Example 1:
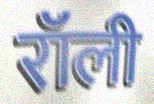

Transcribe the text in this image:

रॉली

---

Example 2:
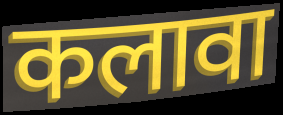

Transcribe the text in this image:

कलावा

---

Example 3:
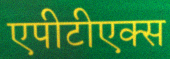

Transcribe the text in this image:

एपीटीएक्स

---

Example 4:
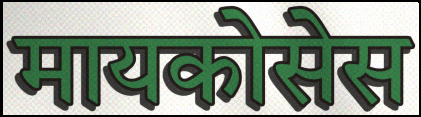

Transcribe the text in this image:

मायकोसेस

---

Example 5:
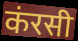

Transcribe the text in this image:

कंरसी